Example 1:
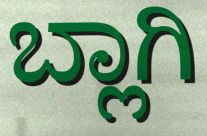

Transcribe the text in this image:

ಬ್ಲಾಗಿ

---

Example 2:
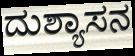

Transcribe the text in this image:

ದುಶ್ಯಾಸನ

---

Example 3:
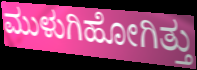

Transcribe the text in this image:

ಮುಳುಗಿಹೋಗಿತ್ತು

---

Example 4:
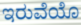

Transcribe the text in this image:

ಇರುವೆಯೊ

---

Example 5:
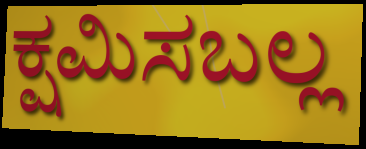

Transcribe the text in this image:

ಕ್ಷಮಿಸಬಲ್ಲ